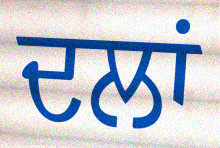
ਦਲਾਂ